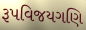
રૂપવિજયગણિ